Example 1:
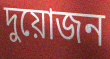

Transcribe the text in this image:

দুয়োজন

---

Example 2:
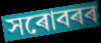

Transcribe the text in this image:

সৰোবৰৰ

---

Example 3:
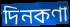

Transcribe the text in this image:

দিনকণা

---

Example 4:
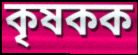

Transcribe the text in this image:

কৃষকক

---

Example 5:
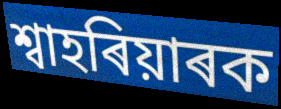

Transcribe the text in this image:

শ্বাহৰিয়াৰক